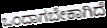
ಒಂದಾಗಬೇಕಾಗಿದೆ